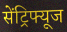
सेंट्रिफ्यूज